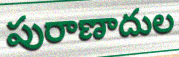
పురాణాదుల